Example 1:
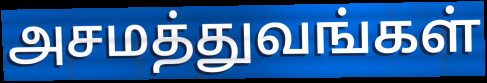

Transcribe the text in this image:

அசமத்துவங்கள்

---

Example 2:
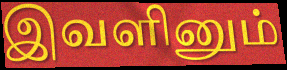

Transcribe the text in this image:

இவளினும்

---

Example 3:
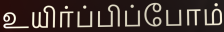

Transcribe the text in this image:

உயிர்ப்பிப்போம்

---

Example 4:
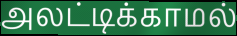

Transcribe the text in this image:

அலட்டிக்காமல்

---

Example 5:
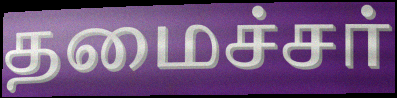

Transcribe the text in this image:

தமைச்சர்